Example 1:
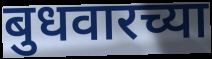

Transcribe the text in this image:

बुधवारच्या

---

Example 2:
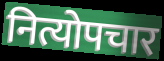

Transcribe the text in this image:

नित्योपचार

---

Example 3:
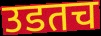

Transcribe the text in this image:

उडतच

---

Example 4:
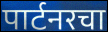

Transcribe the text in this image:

पार्टनरचा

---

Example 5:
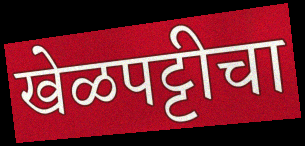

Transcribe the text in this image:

खेळपट्टीचा